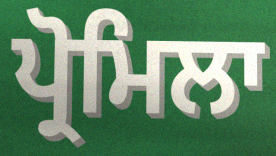
ਪ੍ਰੋਮਿਲਾ